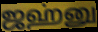
ஜஹ்னு